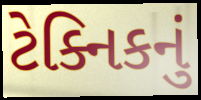
ટેક્નિકનું